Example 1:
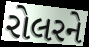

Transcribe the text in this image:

રોલરને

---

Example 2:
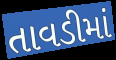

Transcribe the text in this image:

તાવડીમાં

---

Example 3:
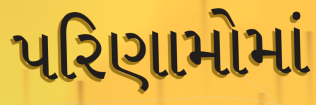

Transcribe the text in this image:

પરિણામોમાં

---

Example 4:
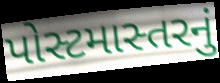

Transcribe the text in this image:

પોસ્ટમાસ્તરનું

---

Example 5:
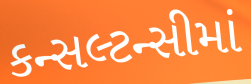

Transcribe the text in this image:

કન્સલ્ટન્સીમાં